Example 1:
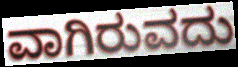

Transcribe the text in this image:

ವಾಗಿರುವದು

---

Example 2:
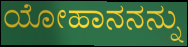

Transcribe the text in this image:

ಯೋಹಾನನನ್ನು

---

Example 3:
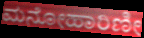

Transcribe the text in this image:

ಮನೋಹಾರಿಣೀ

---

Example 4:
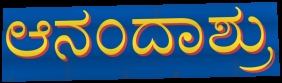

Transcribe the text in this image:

ಆನಂದಾಶ್ರು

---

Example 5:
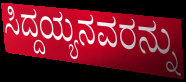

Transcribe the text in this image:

ಸಿದ್ದಯ್ಯನವರನ್ನು